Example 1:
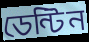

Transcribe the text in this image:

ডেন্টিন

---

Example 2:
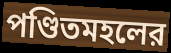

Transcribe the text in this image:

পণ্ডিতমহলের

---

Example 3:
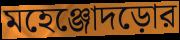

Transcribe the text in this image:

মহেঞ্জোদড়োর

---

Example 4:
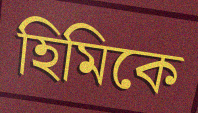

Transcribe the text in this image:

হিমিকে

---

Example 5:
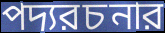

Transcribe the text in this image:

পদ্যরচনার